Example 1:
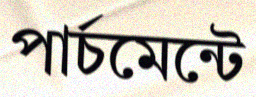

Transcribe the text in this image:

পার্চমেন্টে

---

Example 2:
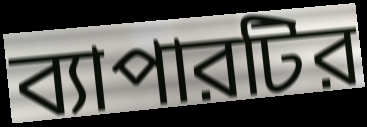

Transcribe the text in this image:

ব্যাপারটির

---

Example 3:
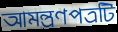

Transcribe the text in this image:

আমন্ত্রণপত্রটি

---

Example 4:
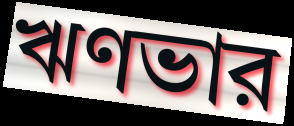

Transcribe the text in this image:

ঋণভার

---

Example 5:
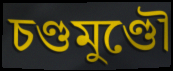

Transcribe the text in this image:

চণ্ডমুণ্ডৌ